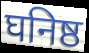
घनिष्ठ